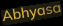
Abhyasa